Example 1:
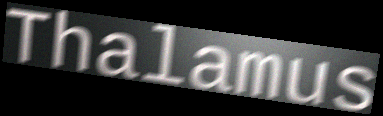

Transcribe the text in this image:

Thalamus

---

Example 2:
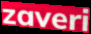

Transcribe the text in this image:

zaveri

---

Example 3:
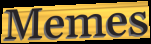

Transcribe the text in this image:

Memes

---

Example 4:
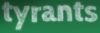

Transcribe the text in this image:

tyrants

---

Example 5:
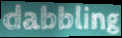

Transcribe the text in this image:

dabbling